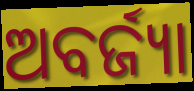
ଅବର୍ଜ୍ୟା